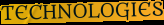
TECHNOLOGIES